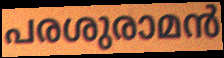
പരശുരാമൻ